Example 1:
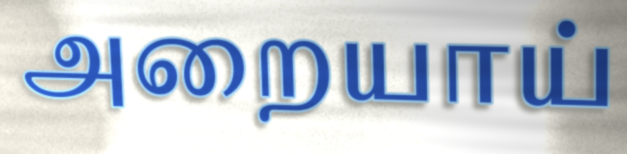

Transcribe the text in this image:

அறையாய்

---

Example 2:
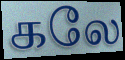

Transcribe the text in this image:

கலே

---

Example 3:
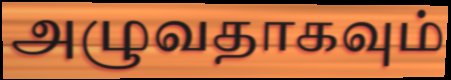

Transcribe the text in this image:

அழுவதாகவும்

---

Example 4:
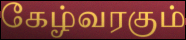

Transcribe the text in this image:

கேழ்வரகும்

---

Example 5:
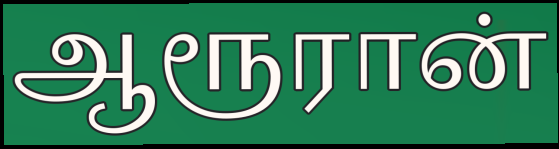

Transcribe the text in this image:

ஆரூரான்